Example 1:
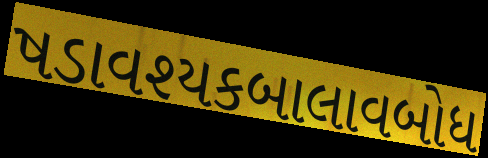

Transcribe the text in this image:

ષડાવશ્યકબાલાવબોધ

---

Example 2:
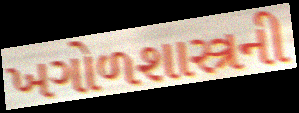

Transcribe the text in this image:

ખગોળશાસ્ત્રની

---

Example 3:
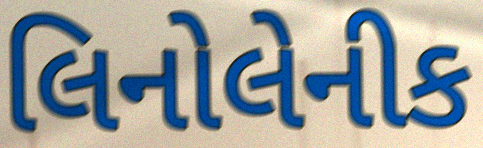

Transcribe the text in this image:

લિનોલેનીક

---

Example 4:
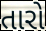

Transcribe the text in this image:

તારો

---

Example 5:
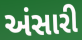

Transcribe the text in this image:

અંસારી